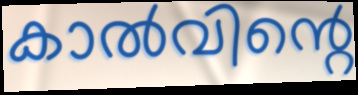
കാൽവിന്റെ